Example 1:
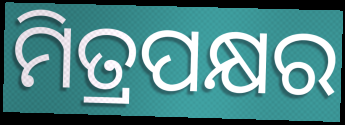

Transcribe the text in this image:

ମିତ୍ରପକ୍ଷର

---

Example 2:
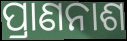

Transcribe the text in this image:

ପ୍ରାଣନାଶ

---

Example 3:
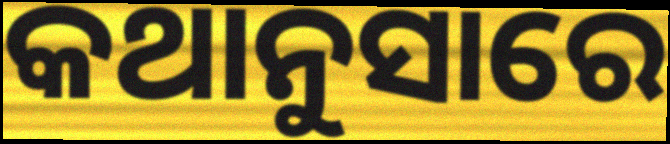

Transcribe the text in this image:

କଥାନୁସାରେ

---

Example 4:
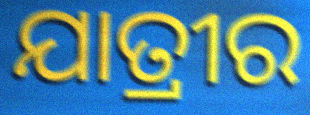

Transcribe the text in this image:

ଯାତ୍ରୀର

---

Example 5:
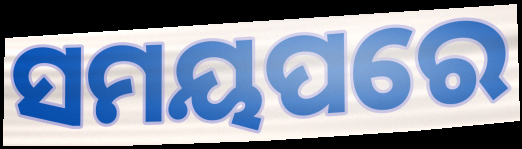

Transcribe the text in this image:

ସମୟପରେ